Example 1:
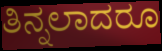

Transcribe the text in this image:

ತಿನ್ನಲಾದರೂ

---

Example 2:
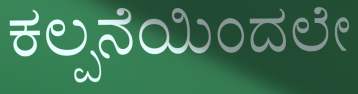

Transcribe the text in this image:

ಕಲ್ಪನೆಯಿಂದಲೇ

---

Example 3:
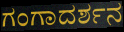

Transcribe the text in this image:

ಗಂಗಾದರ್ಶನ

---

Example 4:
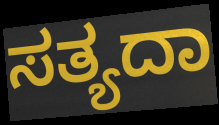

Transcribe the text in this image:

ಸತ್ಯದಾ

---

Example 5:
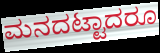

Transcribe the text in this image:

ಮನದಟ್ಟಾದರೂ